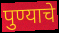
पुण्याचे